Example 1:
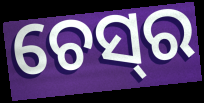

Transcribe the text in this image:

ଚେସ୍‌ର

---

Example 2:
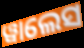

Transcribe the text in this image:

ୱାଲେସ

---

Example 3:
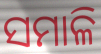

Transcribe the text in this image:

ସମାଳି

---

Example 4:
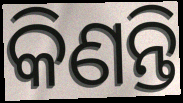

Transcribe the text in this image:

କିଣନ୍ତି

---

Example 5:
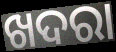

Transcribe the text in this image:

ଖଦରା